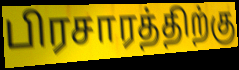
பிரசாரத்திற்கு